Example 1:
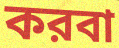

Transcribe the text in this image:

করবা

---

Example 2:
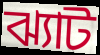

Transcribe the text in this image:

ঝ্যাট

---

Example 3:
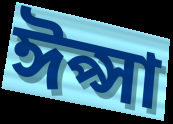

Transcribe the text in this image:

ঈপ্সা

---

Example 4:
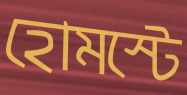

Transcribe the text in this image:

হোমস্টে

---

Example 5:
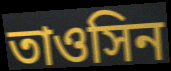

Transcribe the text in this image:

তাওসিন